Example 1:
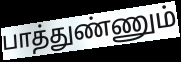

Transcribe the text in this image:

பாத்துண்ணும்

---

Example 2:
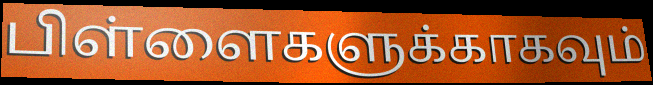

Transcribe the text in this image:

பிள்ளைகளுக்காகவும்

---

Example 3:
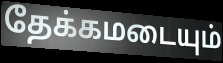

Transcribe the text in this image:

தேக்கமடையும்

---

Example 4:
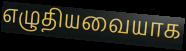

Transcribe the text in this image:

எழுதியவையாக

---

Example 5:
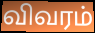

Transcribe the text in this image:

விவரம்